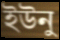
ইউনু